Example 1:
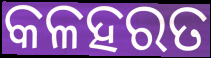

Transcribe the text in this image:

କଳହରତ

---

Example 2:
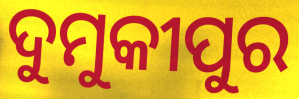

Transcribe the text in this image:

ଦୁମୁକୀପୁର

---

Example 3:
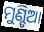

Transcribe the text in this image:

ମୁଣ୍ଡିଆ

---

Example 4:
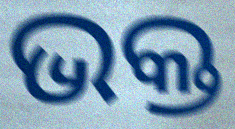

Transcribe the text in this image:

ଭକ୍ତ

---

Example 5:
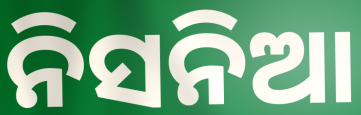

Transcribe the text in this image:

ନିସନିଆ